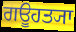
ਗਊਹਤ੍ਯਾ